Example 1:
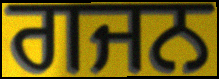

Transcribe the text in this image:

ਗਜਨ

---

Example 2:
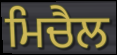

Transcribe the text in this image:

ਮਿਚੈਲ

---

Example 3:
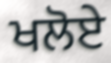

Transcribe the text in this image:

ਖਲੋਏ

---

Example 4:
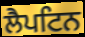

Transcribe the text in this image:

ਲੈਪਟਿਨ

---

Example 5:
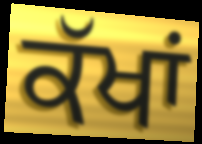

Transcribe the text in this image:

ਕੱਖਾਂ